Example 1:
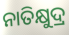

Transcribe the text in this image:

ନାତିକ୍ଷୁଦ୍ର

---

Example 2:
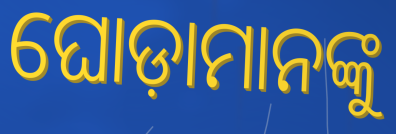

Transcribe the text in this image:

ଘୋଡ଼ାମାନଙ୍କୁ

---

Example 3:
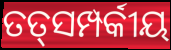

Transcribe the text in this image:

ତତ୍‍ସମ୍ପର୍କୀୟ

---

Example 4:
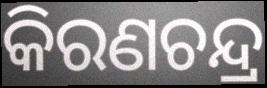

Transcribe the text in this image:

କିରଣଚନ୍ଦ୍ର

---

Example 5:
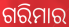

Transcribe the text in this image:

ଗରିମାର